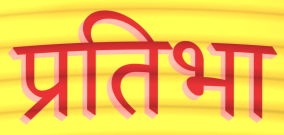
प्रतिभा